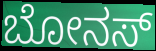
ಬೋನಸ್